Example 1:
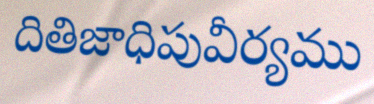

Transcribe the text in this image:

దితిజాధిపువీర్యము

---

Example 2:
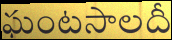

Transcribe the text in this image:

ఘంటసాలదీ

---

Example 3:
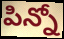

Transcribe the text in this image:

పిన్నో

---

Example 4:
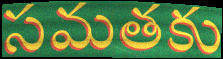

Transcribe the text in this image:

సమతకు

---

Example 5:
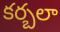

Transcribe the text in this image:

కర్బలా